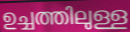
ഉച്ചത്തിലുള്ള